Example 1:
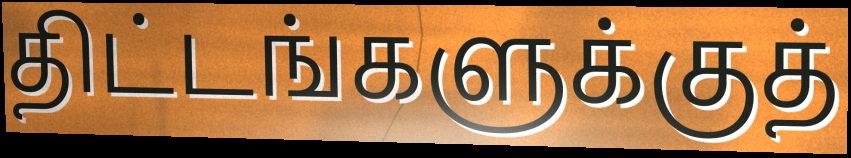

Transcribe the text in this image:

திட்டங்களுக்குத்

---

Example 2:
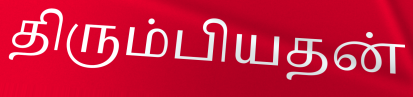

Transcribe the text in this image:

திரும்பியதன்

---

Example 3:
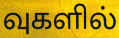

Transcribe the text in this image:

வுகளில்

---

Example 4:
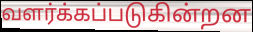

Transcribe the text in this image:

வளர்க்கப்படுகின்றன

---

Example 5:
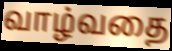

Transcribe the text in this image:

வாழ்வதை